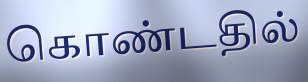
கொண்டதில்